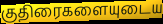
குதிரைகளையுடைய